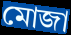
মোজা